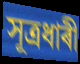
সূত্ৰধাৰী